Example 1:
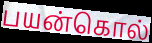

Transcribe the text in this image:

பயன்கொல்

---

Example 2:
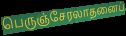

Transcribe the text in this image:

பெருஞ்சேரலாதனைப்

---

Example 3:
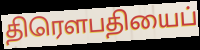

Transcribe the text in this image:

திரெளபதியைப்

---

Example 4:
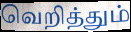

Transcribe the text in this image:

வெறித்தும்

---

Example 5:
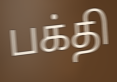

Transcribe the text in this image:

பக்தி